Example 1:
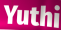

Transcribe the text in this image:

Yuthi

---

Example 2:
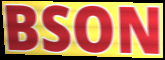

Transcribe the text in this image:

BSON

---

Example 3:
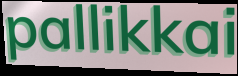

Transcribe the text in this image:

pallikkai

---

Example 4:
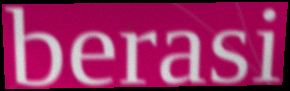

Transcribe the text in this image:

berasi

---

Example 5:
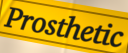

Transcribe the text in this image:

Prosthetic